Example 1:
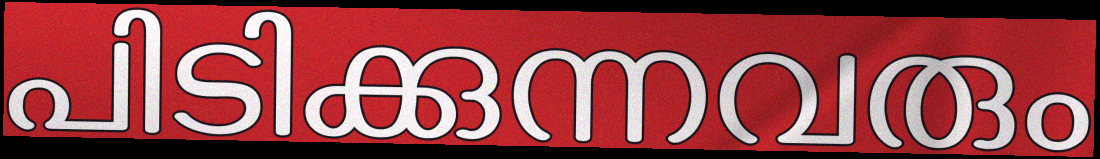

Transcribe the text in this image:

പിടിക്കുന്നവരും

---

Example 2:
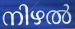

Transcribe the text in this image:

നിഴൽ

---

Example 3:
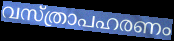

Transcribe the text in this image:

വസ്ത്രാപഹരണം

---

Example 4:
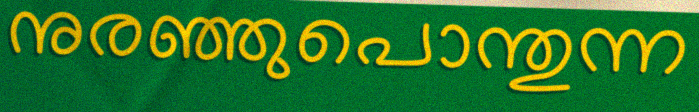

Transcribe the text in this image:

നുരഞ്ഞുപൊന്തുന്ന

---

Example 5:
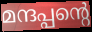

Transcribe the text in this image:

മന്ദപ്പന്റെ